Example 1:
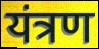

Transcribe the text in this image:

यंत्रण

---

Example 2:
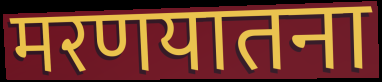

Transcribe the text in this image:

मरणयातना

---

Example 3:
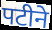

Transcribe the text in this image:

पटीने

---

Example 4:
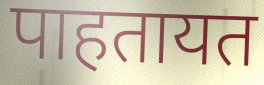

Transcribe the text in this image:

पाहतायत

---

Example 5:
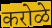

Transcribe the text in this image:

करोळे